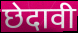
छेदावी